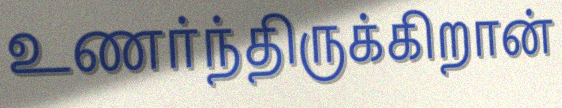
உணர்ந்திருக்கிறான்